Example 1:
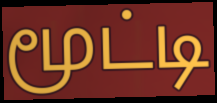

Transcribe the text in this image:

மூட்டி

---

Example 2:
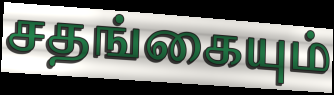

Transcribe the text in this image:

சதங்கையும்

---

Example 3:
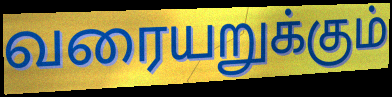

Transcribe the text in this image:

வரையறுக்கும்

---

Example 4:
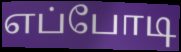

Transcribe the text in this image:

எப்போடி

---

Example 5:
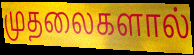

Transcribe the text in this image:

முதலைகளால்